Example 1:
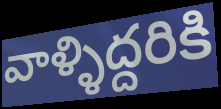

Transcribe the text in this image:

వాళ్ళిద్దరికి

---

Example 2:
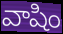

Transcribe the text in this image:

వాషిం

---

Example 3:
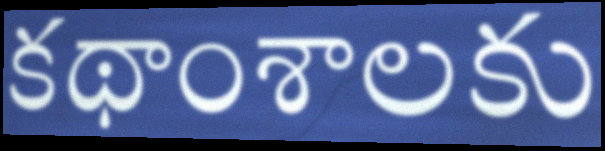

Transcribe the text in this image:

కథాంశాలకు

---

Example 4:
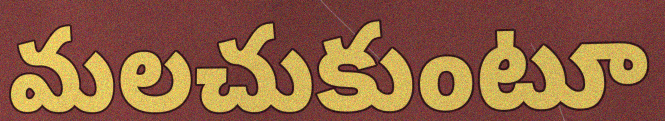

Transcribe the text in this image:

మలచుకుంటూ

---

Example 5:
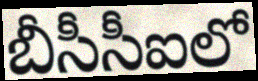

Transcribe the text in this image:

బీసీసీఐలో